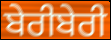
ਬੇਰੀਬੇਰੀ